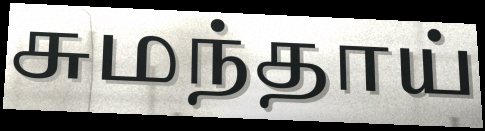
சுமந்தாய்